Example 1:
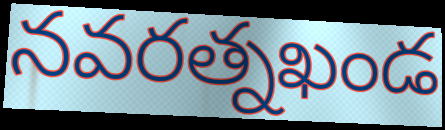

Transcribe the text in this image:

నవరత్నఖండ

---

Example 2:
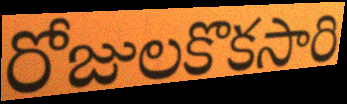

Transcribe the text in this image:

రోజులకొకసారి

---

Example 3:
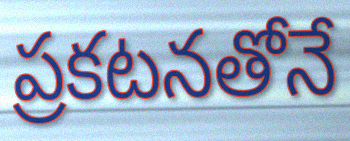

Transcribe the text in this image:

ప్రకటనతోనే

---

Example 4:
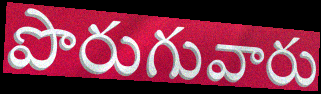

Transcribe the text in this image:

పొరుగువారు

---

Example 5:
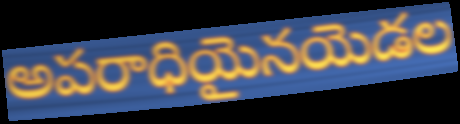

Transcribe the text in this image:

అపరాధియైనయెడల